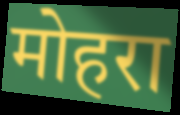
मोहरा